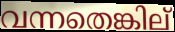
വന്നതെങ്കില്